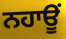
ਨਹਾਊਂ